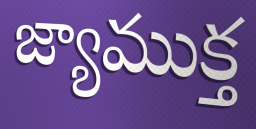
జ్యాముక్త